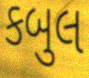
કબુલ